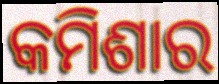
କମିଶାର